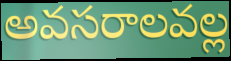
అవసరాలవల్ల